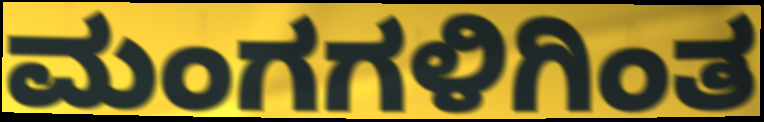
ಮಂಗಗಳಿಗಿಂತ